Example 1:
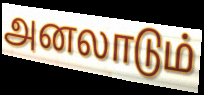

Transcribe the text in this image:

அனலாடும்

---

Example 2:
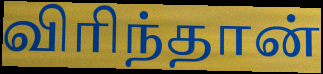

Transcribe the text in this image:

விரிந்தான்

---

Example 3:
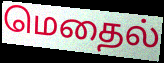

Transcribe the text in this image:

மெதைல்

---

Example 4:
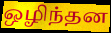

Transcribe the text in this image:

ஒழிந்தன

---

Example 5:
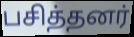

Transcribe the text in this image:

பசித்தனர்